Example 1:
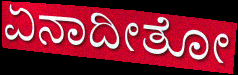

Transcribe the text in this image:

ಏನಾದೀತೋ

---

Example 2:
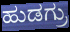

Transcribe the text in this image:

ಹುಡಗ್ರು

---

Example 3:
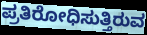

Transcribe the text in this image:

ಪ್ರತಿರೋಧಿಸುತ್ತಿರುವ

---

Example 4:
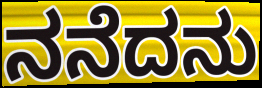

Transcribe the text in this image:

ನನೆದನು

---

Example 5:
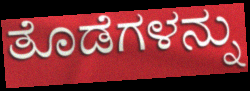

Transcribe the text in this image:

ತೊಡೆಗಳನ್ನು